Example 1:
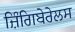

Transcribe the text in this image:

ਜ਼ਿੰਗਿਬੇਰੇਲਸ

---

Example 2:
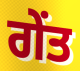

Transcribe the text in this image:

ਗੇਂਤ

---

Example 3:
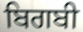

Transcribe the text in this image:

ਬਿਗਬੀ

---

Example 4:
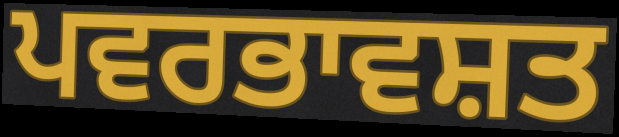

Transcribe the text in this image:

ਪਵਰਭਾਵਸ਼ਤ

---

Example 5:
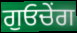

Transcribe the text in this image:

ਗੁਓਚੇਂਗ